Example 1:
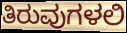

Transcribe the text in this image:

ತಿರುವುಗಳಲಿ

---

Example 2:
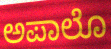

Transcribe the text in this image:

ಅಪಾಲೊ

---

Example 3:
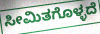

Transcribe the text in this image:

ಸೀಮಿತಗೊಳ್ಳದೆ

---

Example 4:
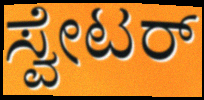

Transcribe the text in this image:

ಸ್ವೇಟರ್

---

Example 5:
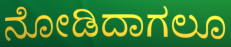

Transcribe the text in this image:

ನೋಡಿದಾಗಲೂ